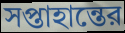
সপ্তাহান্তের